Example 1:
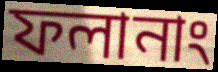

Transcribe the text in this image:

ফলানাং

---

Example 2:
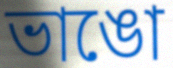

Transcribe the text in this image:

ভাঙো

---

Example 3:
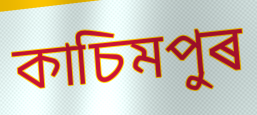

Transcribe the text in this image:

কাচিমপুৰ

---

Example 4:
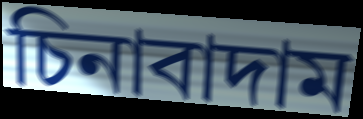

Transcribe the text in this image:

চিনাবাদাম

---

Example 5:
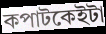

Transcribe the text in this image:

কপাটকেইটা